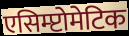
एसिम्प्टोमेटिक